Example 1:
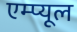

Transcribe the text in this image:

एम्प्यूल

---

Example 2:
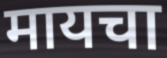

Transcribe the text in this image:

मायचा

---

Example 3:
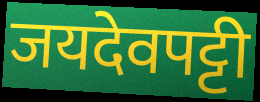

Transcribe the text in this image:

जयदेवपट्टी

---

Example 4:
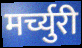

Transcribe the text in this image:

मर्च्युरी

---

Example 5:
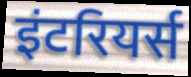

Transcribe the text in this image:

इंटरियर्स